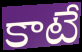
కాటే